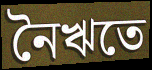
নৈঋতে